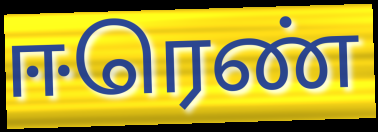
ஈரெண்